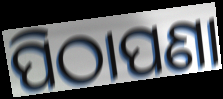
ପିଠାପଣା